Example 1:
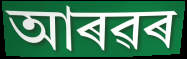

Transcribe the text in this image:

আৰৱৰ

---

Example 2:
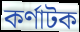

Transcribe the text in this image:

কৰ্ণাটক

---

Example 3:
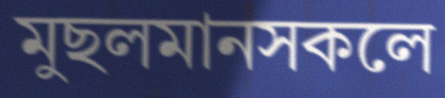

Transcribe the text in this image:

মুছলমানসকলে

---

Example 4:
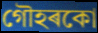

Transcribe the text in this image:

গৌহৰকো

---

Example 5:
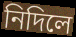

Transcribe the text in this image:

নিদিলে